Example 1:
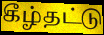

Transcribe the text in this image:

கீழ்தட்டு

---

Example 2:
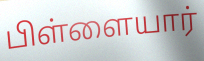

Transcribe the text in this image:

பிள்ளையார்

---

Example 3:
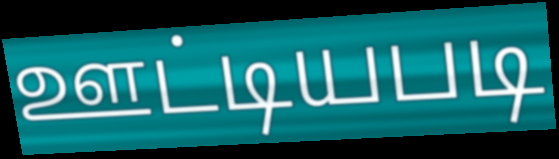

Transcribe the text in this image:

ஊட்டியபடி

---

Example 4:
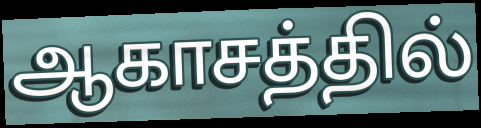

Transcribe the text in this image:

ஆகாசத்தில்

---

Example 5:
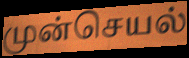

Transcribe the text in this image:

முன்செயல்